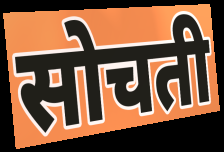
सोचती